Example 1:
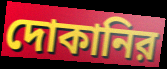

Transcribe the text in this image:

দোকানির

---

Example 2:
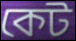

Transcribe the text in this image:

কেট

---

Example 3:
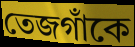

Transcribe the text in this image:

তেজগাঁকে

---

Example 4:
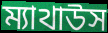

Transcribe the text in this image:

ম্যাথাউস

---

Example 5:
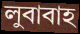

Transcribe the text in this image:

লুবাবাহ